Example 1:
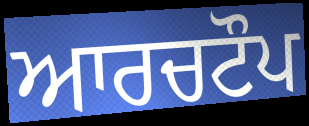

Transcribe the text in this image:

ਆਰਚਟੌਪ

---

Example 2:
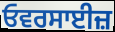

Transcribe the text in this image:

ਓਵਰਸਾਈਜ਼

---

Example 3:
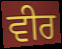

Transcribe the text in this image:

ਵੀਰ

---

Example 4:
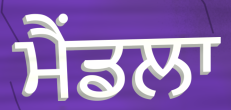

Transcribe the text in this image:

ਮੈਂਡਲਾ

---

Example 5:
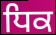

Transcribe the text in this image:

ਧਿਕ